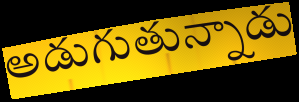
అడుగుతున్నాడు